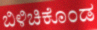
ಬಿಳಿಚಿಕೊಂಡ